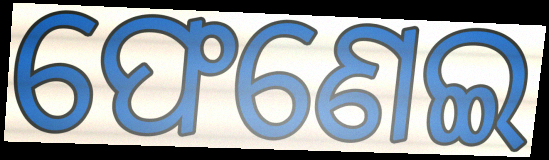
ଫେଣେଇ